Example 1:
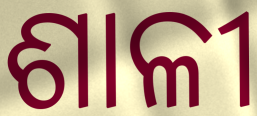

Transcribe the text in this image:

ଶାଳୀ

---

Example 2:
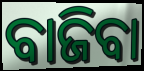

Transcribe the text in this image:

ବାଜିବା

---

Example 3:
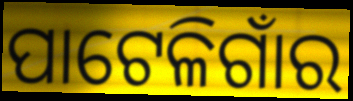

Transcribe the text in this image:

ପାଟେଳିଗାଁର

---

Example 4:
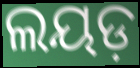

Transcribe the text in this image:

ଲୟଡ଼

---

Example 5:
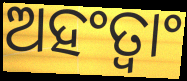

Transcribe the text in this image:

ଅହଂତ୍ୱାଂ